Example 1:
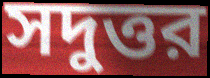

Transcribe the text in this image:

সদুত্তর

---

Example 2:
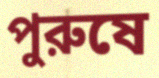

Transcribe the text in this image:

পুরুষে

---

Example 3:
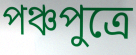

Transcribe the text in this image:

পঞ্চপুত্রে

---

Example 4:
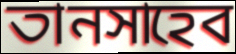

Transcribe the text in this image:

তানসাহেব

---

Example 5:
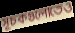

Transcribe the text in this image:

সূচকগুলোতেও